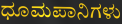
ಧೂಮಪಾನಿಗಳು